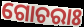
ଗୋଚରାଃ